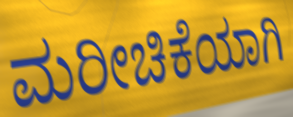
ಮರೀಚಿಕೆಯಾಗಿ